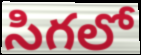
సిగలో